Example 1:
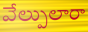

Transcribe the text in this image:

వేల్పులారా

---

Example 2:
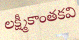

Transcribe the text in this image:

లక్ష్మీకాంతకవి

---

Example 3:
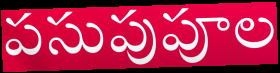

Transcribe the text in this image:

పసుపుపూల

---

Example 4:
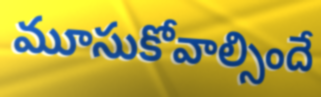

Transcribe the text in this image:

మూసుకోవాల్సిందే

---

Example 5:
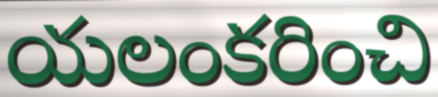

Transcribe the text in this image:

యలంకరించి